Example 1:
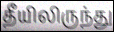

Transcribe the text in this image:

தீயிலிருந்து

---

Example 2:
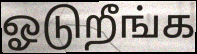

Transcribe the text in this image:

ஓடுறீங்க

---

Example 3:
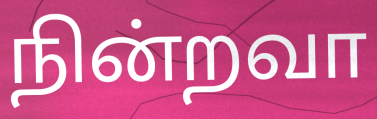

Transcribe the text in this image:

நின்றவா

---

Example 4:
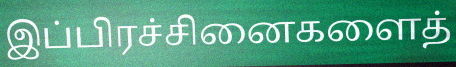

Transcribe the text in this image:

இப்பிரச்சினைகளைத்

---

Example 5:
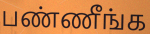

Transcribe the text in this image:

பண்ணீங்க